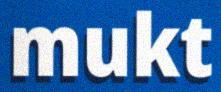
mukt